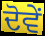
ਦੋਵੇੰ